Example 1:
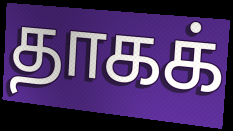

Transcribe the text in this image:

தாகக்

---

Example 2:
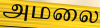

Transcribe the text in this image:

அமலை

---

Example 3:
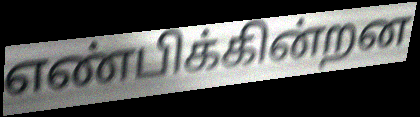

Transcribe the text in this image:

எண்பிக்கின்றன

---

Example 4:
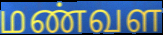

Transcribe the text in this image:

மண்வள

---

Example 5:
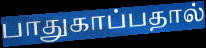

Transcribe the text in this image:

பாதுகாப்பதால்